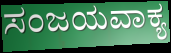
ಸಂಜಯವಾಕ್ಯ